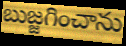
బుజ్జగించాను